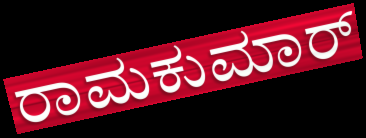
ರಾಮಕುಮಾರ್